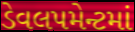
ડેવલપમેન્ટમાં